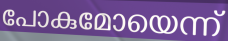
പോകുമോയെന്ന്